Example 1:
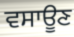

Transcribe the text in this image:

ਵਸਾਊਣ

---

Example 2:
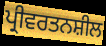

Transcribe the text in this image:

ਪ੍ਰੀਵਰਤਨਸ਼ੀਲ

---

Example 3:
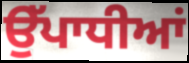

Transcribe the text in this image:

ਉੱਪਾਧੀਆਂ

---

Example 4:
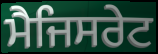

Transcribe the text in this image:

ਮੈਜਿਸਰੇਟ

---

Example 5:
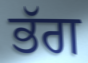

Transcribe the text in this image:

ਭੱਗ